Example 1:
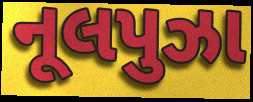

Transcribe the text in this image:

નૂલપુઝા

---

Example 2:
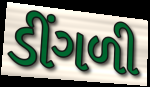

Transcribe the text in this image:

ડીંગળી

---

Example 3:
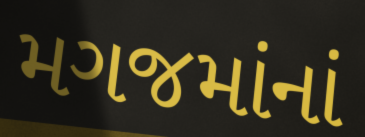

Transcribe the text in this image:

મગજમાંનાં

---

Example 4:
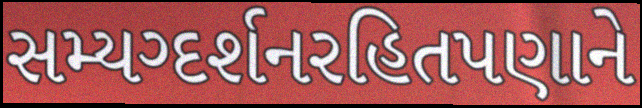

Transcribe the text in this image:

સમ્યગ્દર્શનરહિતપણાને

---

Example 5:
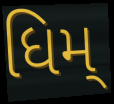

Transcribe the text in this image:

ધિમ્